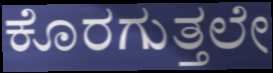
ಕೊರಗುತ್ತಲೇ